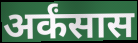
अर्कंसास